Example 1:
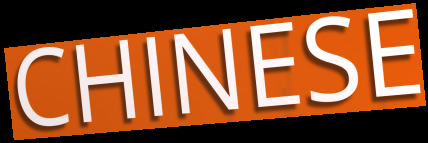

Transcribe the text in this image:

CHINESE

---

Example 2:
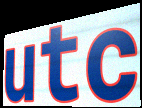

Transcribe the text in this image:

utc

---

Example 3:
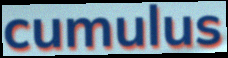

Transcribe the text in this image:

cumulus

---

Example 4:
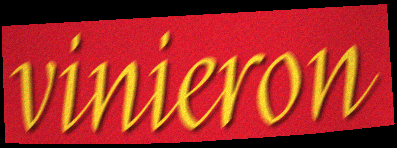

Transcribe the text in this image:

vinieron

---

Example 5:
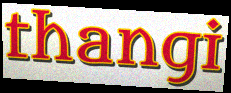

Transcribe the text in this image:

thangi